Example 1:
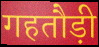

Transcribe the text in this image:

गहतौड़ी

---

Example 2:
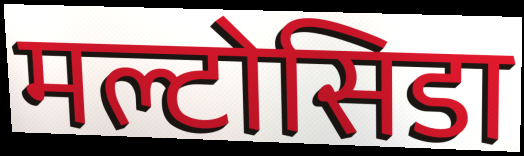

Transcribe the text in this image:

मल्टोसिडा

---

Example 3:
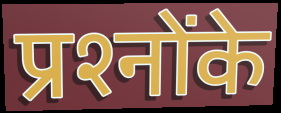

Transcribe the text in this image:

प्रश्नोंके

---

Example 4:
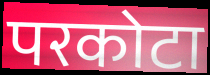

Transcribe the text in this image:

परकोटा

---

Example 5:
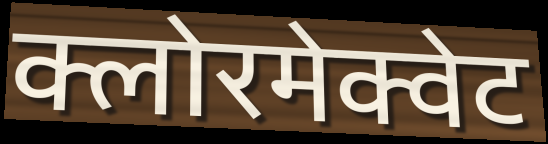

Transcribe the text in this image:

क्लोरमेक्वेट